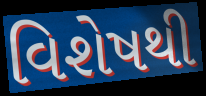
વિશેષથી